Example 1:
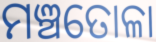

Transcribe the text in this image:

ମଞ୍ଚତୋଳା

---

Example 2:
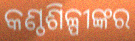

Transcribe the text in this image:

କଣ୍ଠଶିଳ୍ପୀଙ୍କର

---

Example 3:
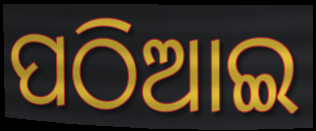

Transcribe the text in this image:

ପଠିଆଇ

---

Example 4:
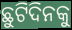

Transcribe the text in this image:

ଛୁଟିଦିନକୁ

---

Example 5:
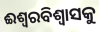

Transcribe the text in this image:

ଈଶ୍ୱରବିଶ୍ଵାସକୁ